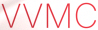
VVMC